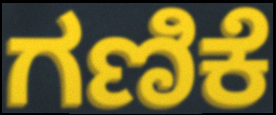
ಗಣಿಕೆ